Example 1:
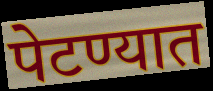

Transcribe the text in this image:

पेटण्यात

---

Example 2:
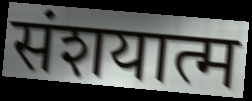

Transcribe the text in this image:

संशयात्म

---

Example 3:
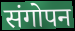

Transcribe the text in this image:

संगोपन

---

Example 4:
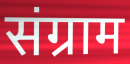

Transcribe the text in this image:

संग्राम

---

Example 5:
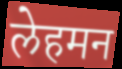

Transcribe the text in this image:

लेहमन